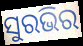
ସୁରଭିର